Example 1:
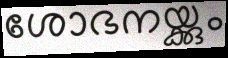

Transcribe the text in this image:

ശോഭനയ്ക്കും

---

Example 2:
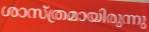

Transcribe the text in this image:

ശാസ്ത്രമായിരുന്നു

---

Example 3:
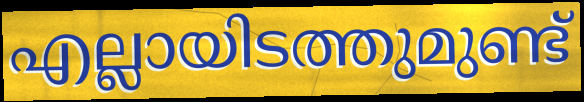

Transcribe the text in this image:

എല്ലായിടത്തുമുണ്ട്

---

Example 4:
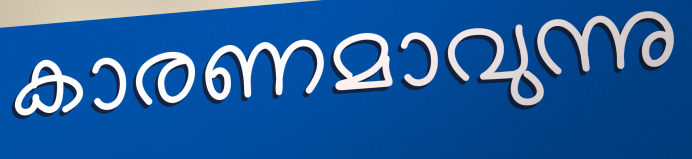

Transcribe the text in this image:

കാരണമാവുന്നു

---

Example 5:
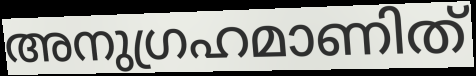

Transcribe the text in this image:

അനുഗ്രഹമാണിത്